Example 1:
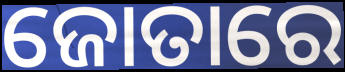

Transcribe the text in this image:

ଜୋତାରେ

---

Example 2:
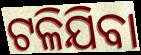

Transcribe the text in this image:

ଟଳିଯିବା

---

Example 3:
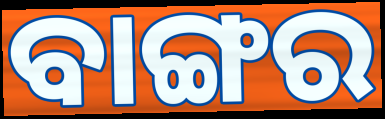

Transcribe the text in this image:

ବାଙ୍ଗର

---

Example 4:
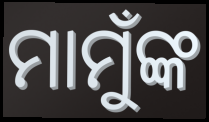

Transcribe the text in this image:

ମାମୁଁଙ୍କ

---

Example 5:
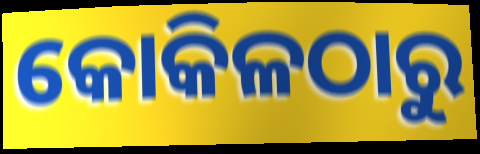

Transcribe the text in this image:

କୋକିଳଠାରୁ